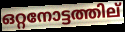
ഒറ്റനോട്ടത്തില്